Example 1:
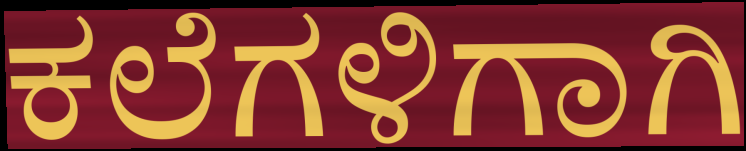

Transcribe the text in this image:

ಕಲೆಗಳಿಗಾಗಿ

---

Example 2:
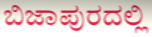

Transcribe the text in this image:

ಬಿಜಾಪುರದಲ್ಲಿ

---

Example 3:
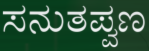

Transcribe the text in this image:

ಸನುತಪ್ವಣ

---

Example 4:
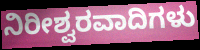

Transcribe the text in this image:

ನಿರೀಶ್ವರವಾದಿಗಳು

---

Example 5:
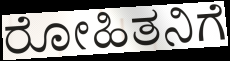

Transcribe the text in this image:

ರೋಹಿತನಿಗೆ